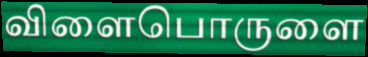
விளைபொருளை